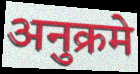
अनुक्रमे